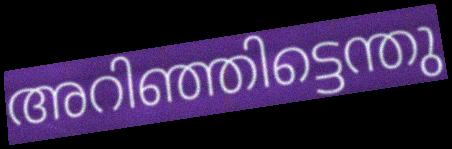
അറിഞ്ഞിട്ടെന്തു